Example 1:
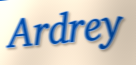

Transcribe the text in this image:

Ardrey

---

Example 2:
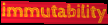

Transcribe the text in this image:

immutability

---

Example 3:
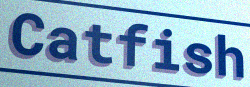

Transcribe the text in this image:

Catfish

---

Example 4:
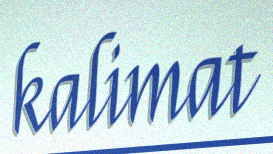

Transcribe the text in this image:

kalimat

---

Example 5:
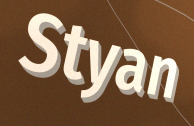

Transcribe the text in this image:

Styan